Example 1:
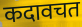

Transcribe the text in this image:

कदावचत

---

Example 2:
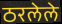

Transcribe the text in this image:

ठरलेले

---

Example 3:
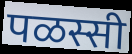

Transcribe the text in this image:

पळस्सी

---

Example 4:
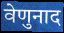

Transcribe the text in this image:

वेणुनाद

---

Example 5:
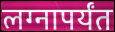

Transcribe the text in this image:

लग्नापर्यंत